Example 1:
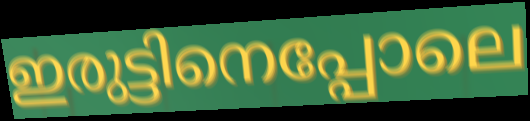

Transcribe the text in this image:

ഇരുട്ടിനെപ്പോലെ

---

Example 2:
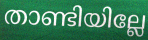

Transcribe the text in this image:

താണ്ടിയില്ലേ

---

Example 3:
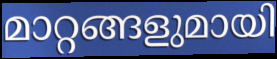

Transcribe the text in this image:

മാറ്റങ്ങളുമായി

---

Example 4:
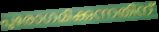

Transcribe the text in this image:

പുരോഗമിക്കുന്നതിന്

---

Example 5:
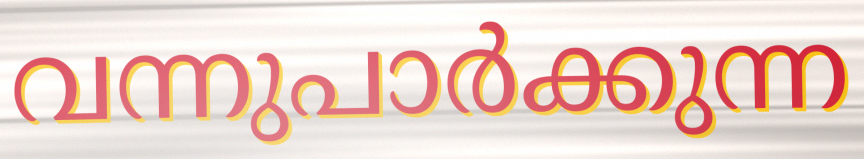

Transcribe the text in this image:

വന്നുപാർക്കുന്ന